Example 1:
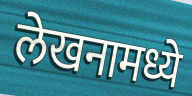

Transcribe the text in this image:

लेखनामध्ये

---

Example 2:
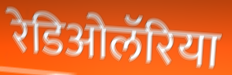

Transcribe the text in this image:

रेडिओलॅरिया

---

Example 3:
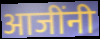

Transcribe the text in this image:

आजींनी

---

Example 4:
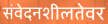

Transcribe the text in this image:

संवेदनशीलतेवर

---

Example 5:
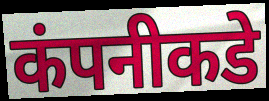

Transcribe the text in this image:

कंपनीकडे